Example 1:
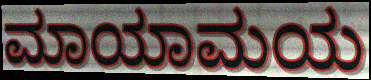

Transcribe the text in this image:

ಮಾಯಾಮಯ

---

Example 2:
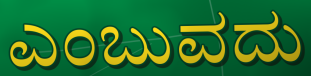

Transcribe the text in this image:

ಎಂಬುವದು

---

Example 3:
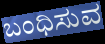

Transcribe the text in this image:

ಬಂಧಿಸುವ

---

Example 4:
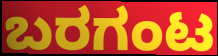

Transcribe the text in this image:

ಬರಗಂಟ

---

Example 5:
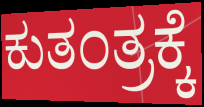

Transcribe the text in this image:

ಕುತಂತ್ರಕ್ಕೆ